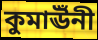
কুমাঊঁনী